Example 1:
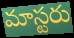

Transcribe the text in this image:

మాస్టరు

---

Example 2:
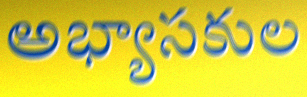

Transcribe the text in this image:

అభ్యాసకుల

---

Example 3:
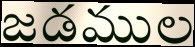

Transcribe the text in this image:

జడముల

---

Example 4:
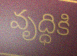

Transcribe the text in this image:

వృద్ధికి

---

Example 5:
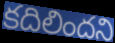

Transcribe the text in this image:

కదిలిందని